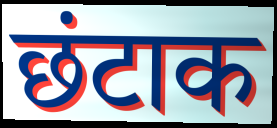
छंटाक